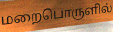
மறைபொருளில்